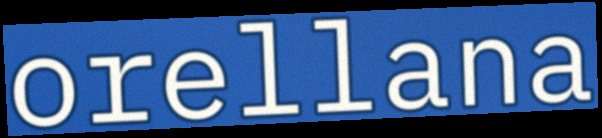
orellana